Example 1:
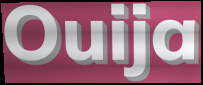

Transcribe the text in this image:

Ouija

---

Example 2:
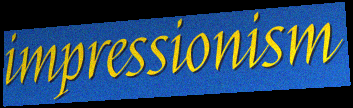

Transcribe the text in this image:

impressionism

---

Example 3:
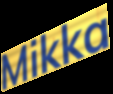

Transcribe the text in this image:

Mikka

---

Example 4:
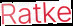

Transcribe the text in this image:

Ratke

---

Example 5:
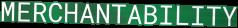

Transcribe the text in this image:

MERCHANTABILITY